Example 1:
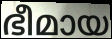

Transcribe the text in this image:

ഭീമായ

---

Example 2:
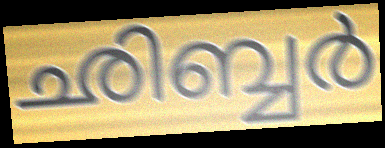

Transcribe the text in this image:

ഛിബ്ബർ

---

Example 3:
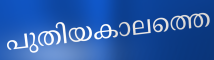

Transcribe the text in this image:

പുതിയകാലത്തെ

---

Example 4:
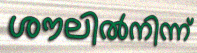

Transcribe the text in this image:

ശൗലിൽനിന്ന്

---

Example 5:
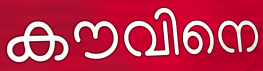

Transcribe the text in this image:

കൗവിനെ